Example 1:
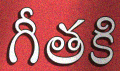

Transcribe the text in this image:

గీతకి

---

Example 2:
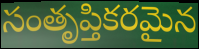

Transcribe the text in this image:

సంతృప్తికరమైన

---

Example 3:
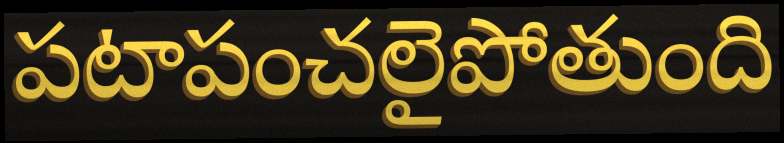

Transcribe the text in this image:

పటాపంచలైపోతుంది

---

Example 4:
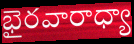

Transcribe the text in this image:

భైరవారాధ్యా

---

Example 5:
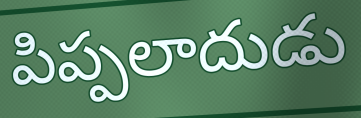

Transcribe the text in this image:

పిప్పలాదుడు